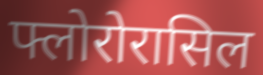
फ्लोरोरासिल